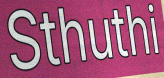
Sthuthi